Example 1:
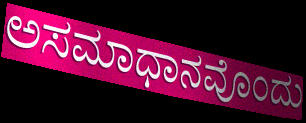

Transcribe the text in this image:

ಅಸಮಾಧಾನವೊಂದು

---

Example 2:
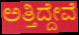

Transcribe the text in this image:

ಅತ್ತಿದ್ದೇವೆ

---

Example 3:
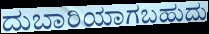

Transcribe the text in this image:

ದುಬಾರಿಯಾಗಬಹುದು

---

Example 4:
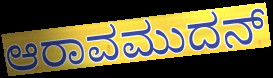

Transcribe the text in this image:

ಆರಾವಮುದನ್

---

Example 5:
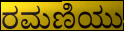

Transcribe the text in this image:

ರಮಣಿಯು